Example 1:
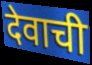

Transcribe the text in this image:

देवाची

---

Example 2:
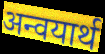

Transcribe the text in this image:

अन्वयार्थ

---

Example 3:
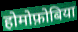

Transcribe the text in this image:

होमोफ़ोबिया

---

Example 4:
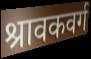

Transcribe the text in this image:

श्रावकवर्ग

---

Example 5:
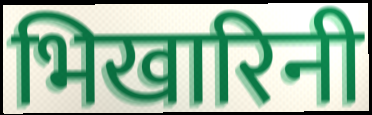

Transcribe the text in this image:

भिखारिनी